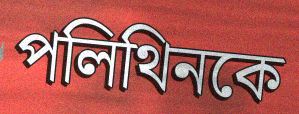
পলিথিনকে